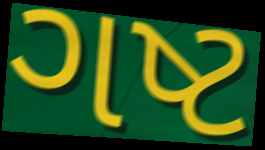
ગષ્ટ